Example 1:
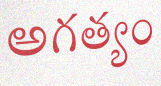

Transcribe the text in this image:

అగత్యం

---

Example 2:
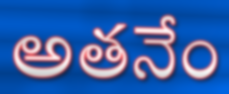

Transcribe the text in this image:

అతనేం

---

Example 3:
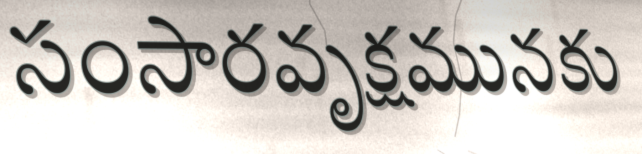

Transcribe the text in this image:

సంసారవృక్షమునకు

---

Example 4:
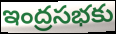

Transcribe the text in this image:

ఇంద్రసభకు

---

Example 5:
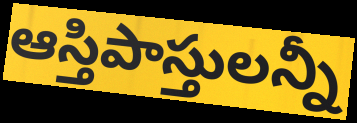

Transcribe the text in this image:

ఆస్తిపాస్తులన్నీ